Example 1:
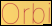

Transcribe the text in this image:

Orbi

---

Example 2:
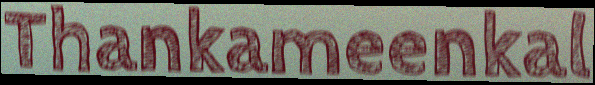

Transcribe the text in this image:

Thankameenkal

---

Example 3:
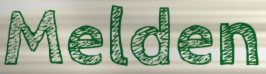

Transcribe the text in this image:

Melden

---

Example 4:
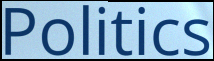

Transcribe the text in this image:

Politics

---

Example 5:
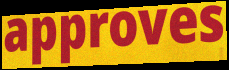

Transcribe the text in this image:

approves